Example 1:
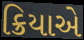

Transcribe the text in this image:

ક્રિયાએ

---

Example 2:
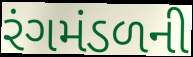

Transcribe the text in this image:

રંગમંડળની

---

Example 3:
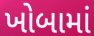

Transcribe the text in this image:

ખોબામાં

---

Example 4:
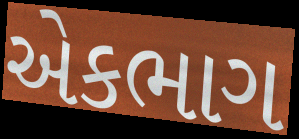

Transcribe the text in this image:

એકભાગ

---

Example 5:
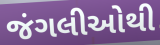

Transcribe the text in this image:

જંગલીઓથી